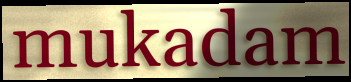
mukadam